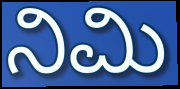
ನಿಮಿ